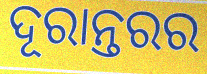
ଦୂରାନ୍ତରର